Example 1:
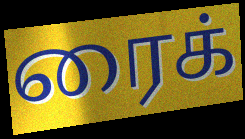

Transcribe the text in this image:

ரைக்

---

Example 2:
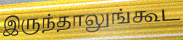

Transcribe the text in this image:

இருந்தாலுங்கூட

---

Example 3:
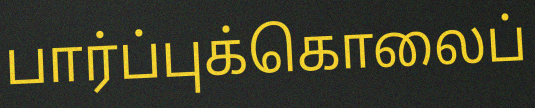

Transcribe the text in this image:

பார்ப்புக்கொலைப்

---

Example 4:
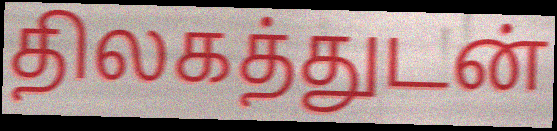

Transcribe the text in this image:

திலகத்துடன்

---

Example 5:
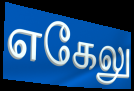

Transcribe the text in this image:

எகேலு